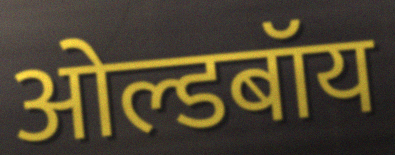
ओल्डबॉय